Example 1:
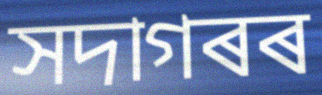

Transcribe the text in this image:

সদাগৰৰ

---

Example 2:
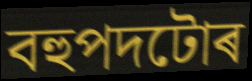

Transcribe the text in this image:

বহুপদটোৰ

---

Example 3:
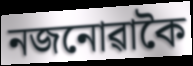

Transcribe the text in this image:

নজনোৱাকৈ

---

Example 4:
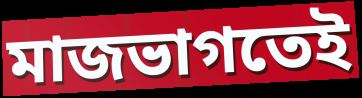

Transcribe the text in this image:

মাজভাগতেই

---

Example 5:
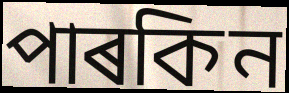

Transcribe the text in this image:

পাৰকিন